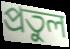
প্রতুল